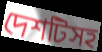
দেশটিসহ